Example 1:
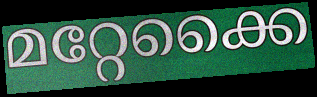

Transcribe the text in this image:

മറ്റേക്കൈ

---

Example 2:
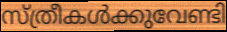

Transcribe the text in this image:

സ്ത്രീകൾക്കുവേണ്ടി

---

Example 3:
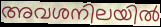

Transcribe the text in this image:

അവശനിലയിൽ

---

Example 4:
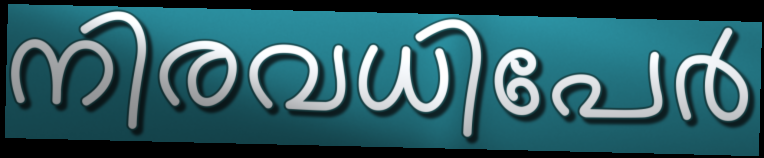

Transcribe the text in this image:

നിരവധിപേർ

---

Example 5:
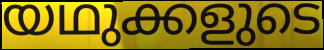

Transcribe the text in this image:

യഥുക്കളുടെ